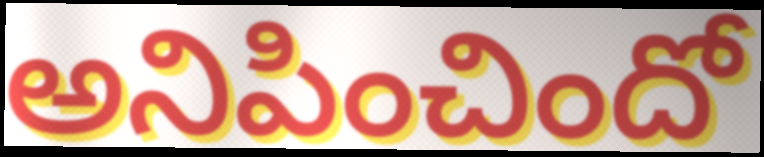
అనిపించిందో